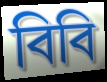
বিবি